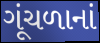
ગૂંચળાનાં